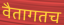
वैतागतच